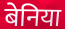
बेनिया